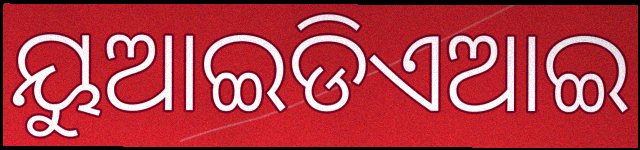
ୟୁଆଇଡିଏଆଇ